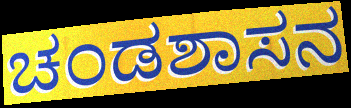
ಚಂಡಶಾಸನ